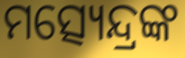
ମତ୍ସ୍ୟେନ୍ଦ୍ରଙ୍କ